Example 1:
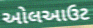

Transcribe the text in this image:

ઓલઆઉટ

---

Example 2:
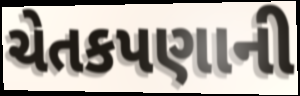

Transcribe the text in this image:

ચેતકપણાની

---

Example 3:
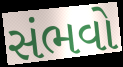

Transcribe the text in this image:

સંભવો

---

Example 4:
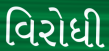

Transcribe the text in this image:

વિરોધી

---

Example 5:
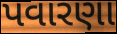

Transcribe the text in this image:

પવારણા